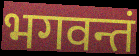
भगवन्तं